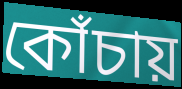
কোঁচায়